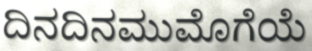
ದಿನದಿನಮುಮೊಗೆಯೆ